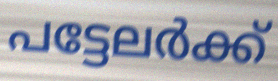
പട്ടേലർക്ക്